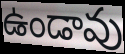
ఉండావు